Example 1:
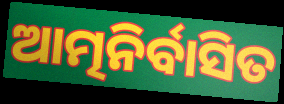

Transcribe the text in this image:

ଆତ୍ମନିର୍ବାସିତ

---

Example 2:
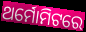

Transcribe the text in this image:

ଥର୍ମୋମିଟରେ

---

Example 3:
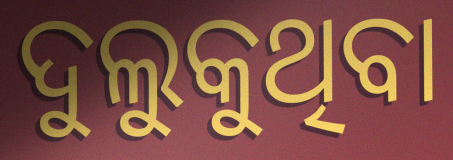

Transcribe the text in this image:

ଦୁଲୁକୁଥିବା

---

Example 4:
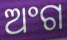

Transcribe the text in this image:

ଅଂଗ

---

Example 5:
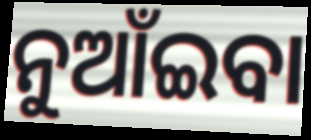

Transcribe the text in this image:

ନୁଆଁଇବା